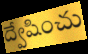
ద్వేషించు